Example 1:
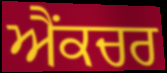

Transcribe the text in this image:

ਐਂਕਚਰ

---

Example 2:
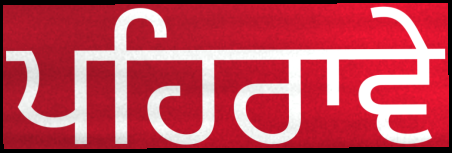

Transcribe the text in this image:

ਪਹਿਰਾਵੇ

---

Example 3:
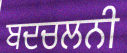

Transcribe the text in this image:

ਬਦਚਲਨੀ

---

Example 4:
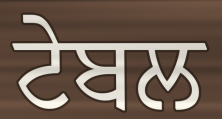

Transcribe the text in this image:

ਟੇਬਲ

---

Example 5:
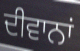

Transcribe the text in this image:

ਦੀਵਾਨਾਂ